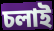
চলাই